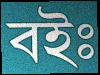
বইঃ